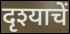
दृश्याचें